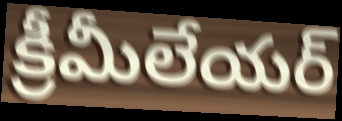
క్రీమీలేయర్